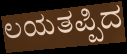
ಲಯತಪ್ಪಿದ